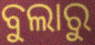
ବୁଲାରୁ